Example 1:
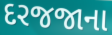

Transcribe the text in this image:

દરજજાના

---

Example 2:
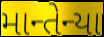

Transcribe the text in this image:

માન્તેન્યા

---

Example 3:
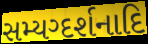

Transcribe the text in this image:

સમ્યગ્દર્શનાદિ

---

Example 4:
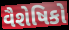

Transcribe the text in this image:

વૈશેષિકો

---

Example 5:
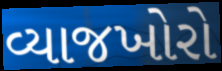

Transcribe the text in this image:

વ્યાજખોરો